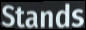
Stands